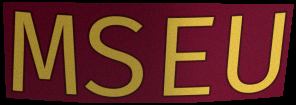
MSEU